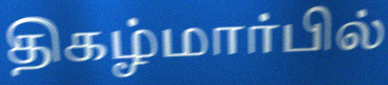
திகழ்மார்பில்